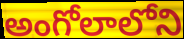
అంగోలాలోని